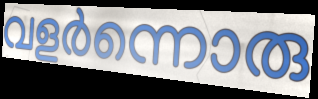
വളർന്നൊരു